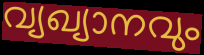
വ്യഖ്യാനവും